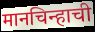
मानचिन्हाची